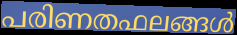
പരിണതഫലങ്ങൾ